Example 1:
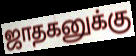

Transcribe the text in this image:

ஜாதகனுக்கு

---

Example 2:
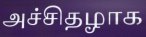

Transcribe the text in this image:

அச்சிதழாக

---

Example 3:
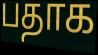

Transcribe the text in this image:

பதாக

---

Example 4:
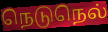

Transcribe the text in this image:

நெடுநெல்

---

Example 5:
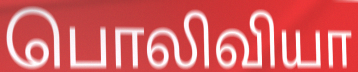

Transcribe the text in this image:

பொலிவியா